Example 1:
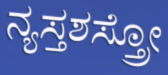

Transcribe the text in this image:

ನ್ಯಸ್ತಶಸ್ತ್ರೋ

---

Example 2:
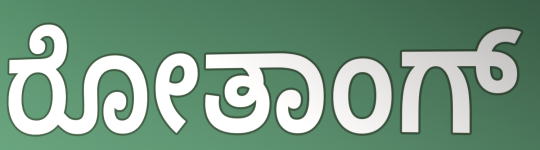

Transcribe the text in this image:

ರೋತಾಂಗ್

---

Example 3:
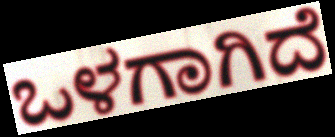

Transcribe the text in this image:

ಒಳಗಾಗಿದೆ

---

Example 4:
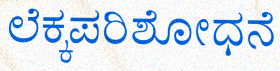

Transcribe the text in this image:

ಲೆಕ್ಕಪರಿಶೋಧನೆ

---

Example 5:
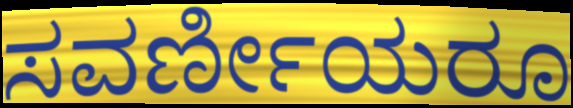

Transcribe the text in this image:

ಸವರ್ಣೀಯರೂ